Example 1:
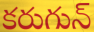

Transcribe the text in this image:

కరుగున్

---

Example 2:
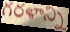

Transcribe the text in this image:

గరళాన్ని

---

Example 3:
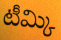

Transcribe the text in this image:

టీమ్కి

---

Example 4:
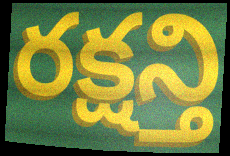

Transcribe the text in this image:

రక్షన్తి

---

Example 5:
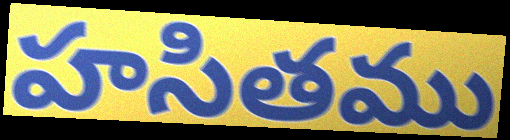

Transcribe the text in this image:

హసితము